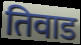
तिवाड